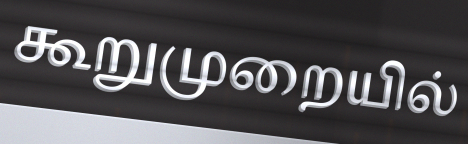
கூறுமுறையில்